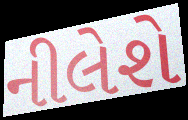
નીલેશે